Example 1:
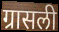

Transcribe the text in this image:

ग्रासली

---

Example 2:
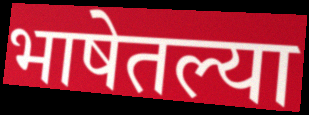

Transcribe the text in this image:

भाषेतल्या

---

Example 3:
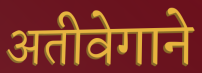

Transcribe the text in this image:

अतीवेगाने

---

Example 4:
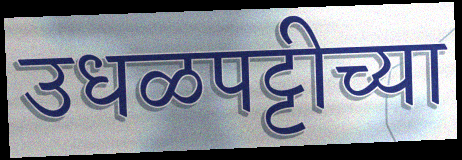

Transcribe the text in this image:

उधळपट्टीच्या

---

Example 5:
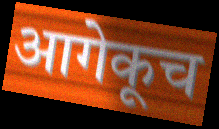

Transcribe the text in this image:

आगेकूच